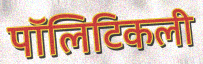
पॉलिटिकली